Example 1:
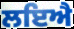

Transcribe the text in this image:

ਲਇਐ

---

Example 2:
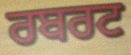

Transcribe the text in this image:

ਰਬਰਟ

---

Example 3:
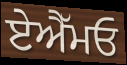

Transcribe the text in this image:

ਏਐੱਮਓ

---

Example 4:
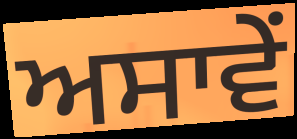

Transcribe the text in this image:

ਅਸਾਵੇਂ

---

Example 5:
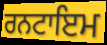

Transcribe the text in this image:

ਰਨਟਾਇਮ